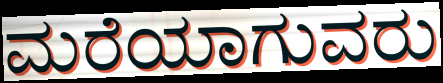
ಮರೆಯಾಗುವರು